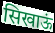
सिखाऊं